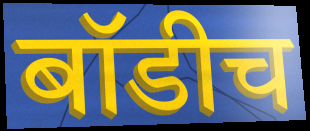
बॉडीच